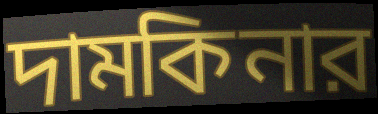
দামকিনার